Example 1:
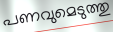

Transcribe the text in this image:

പണവുമെടുത്തു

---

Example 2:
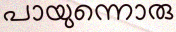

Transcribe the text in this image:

പായുന്നൊരു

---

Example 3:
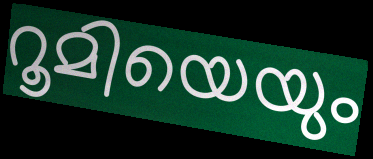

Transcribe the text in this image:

റൂമിയെയും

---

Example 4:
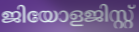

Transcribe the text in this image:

ജിയോളജിസ്റ്റ്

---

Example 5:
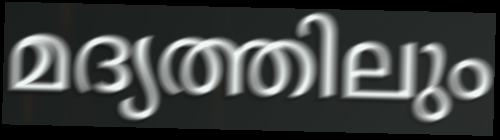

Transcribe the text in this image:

മദ്യത്തിലും